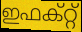
ഇഫക്റ്റ്